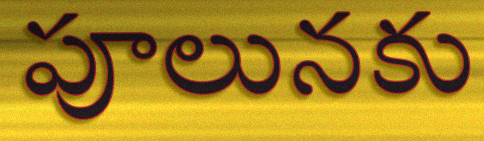
పూలునకు